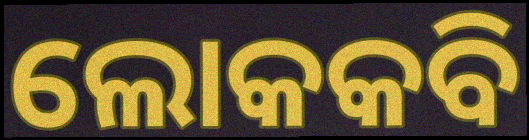
ଲୋକକବି